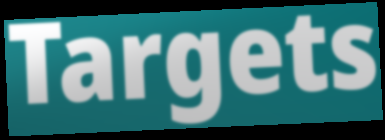
Targets